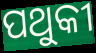
ପଥୁକୀ